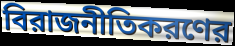
বিরাজনীতিকরণের